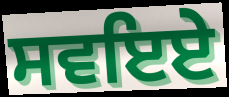
ਸਵਇਏ